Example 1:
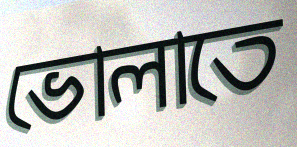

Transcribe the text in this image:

ভোলাতে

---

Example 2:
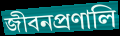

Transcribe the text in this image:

জীবনপ্রণালি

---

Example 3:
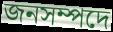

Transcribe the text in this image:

জনসম্পদে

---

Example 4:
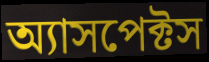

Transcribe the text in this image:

অ্যাসপেক্টস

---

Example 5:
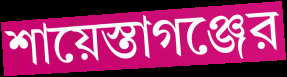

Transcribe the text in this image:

শায়েস্তাগঞ্জের